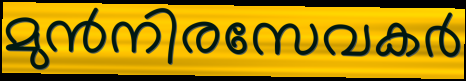
മുൻനിരസേവകർ